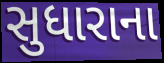
સુધારાના